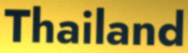
Thailand